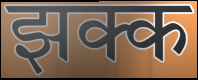
झक्क